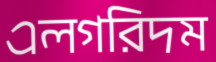
এলগরিদম